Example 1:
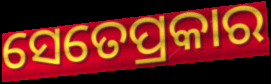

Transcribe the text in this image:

ସେତେପ୍ରକାର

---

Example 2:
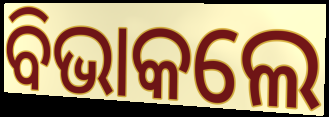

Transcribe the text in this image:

ବିଭାକଲେ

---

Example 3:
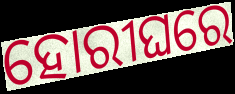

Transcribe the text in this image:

ହୋରୀଘରେ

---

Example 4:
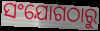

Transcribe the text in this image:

ସଂଯୋଗଠାରୁ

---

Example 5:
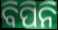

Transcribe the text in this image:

ବିପିନି